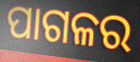
ପାଗଳର